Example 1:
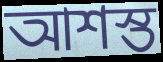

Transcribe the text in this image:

আশস্ত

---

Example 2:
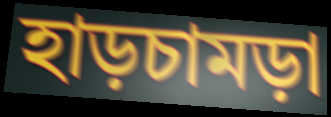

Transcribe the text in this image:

হাড়চামড়া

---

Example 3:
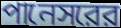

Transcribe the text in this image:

পানেসরের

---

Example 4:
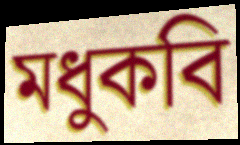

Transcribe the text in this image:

মধুকবি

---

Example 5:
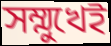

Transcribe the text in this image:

সম্মুখেই